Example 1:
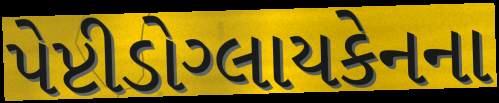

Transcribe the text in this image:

પેપ્ટીડોગ્લાયકેનના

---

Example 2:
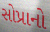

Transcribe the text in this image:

સોપ્રાનો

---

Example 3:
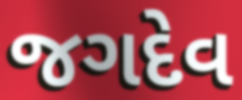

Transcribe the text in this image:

જગદેવ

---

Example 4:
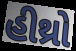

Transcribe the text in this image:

હીથ્રો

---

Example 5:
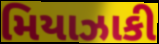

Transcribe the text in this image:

મિયાઝાકી